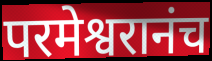
परमेश्वरानंच